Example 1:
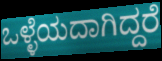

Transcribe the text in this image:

ಒಳ್ಳೆಯದಾಗಿದ್ದರೆ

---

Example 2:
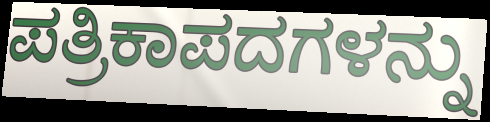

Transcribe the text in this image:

ಪತ್ರಿಕಾಪದಗಳನ್ನು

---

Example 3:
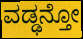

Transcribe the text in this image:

ವಡ್ಢನ್ತೋ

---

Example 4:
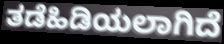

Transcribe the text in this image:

ತಡೆಹಿಡಿಯಲಾಗಿದೆ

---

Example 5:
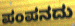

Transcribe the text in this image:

ಪಂಪನದು